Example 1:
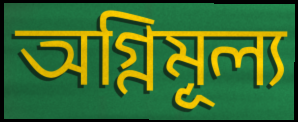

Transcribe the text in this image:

অগ্নিমূল্য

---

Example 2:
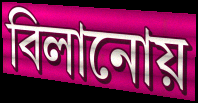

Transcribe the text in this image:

বিলানোয়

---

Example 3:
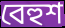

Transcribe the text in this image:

বেহুশ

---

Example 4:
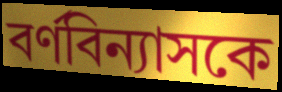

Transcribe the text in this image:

বর্ণবিন্যাসকে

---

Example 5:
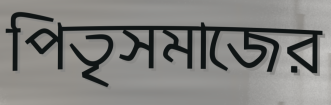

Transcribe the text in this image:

পিতৃসমাজের